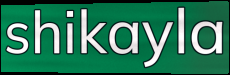
shikayla